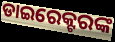
ଡାଇରେକ୍ଟରଙ୍କ